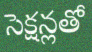
సెక్షన్లతో